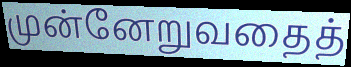
முன்னேறுவதைத்